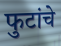
फुटांचे